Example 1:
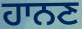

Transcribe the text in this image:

ਹਾਨਣ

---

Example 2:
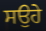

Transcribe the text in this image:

ਸਉਹੇ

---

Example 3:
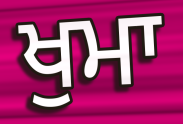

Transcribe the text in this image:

ਖੁਮਾ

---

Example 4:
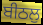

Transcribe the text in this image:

ਬੀਠਲੁ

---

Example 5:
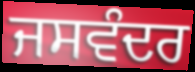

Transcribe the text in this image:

ਜਸਵੰਦਰ